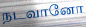
நடவானோ